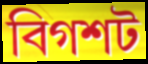
বিগশট